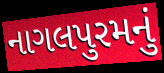
નાગલપુરમનું